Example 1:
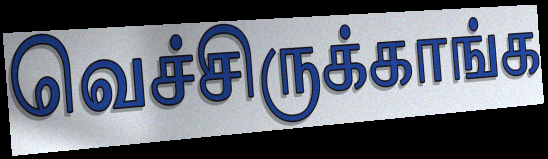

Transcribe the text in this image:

வெச்சிருக்காங்க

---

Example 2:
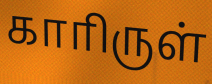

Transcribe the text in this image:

காரிருள்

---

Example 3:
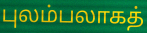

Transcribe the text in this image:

புலம்பலாகத்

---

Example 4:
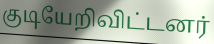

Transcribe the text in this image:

குடியேறிவிட்டனர்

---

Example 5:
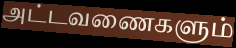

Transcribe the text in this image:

அட்டவணைகளும்